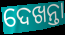
ଦେଖନ୍ତା